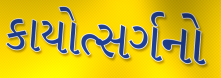
કાયોત્સર્ગનો